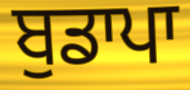
ਬੁਡਾਪਾ